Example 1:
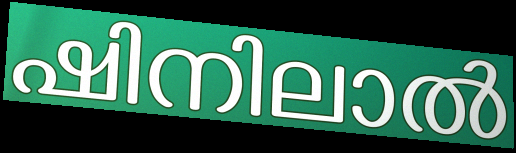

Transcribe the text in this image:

ഷിനിലാൽ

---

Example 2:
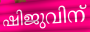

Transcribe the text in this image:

ഷിജുവിന്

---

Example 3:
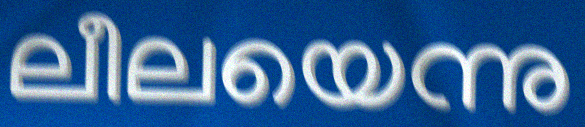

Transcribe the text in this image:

ലീലയെന്നു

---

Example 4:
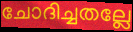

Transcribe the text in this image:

ചോദിച്ചതല്ലേ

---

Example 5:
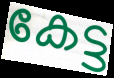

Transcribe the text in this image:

കേട്ട